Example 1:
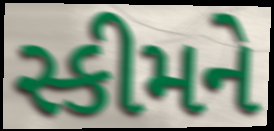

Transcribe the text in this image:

સ્કીમને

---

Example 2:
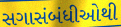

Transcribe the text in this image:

સગાસંબંધીઓથી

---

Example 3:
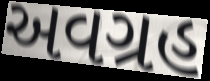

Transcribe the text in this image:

અવગ્રહ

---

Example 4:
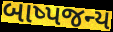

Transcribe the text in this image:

બાષ્પજન્ય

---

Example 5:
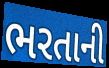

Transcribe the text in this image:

ભરતાની